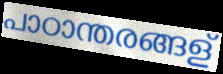
പാഠാന്തരങ്ങള്